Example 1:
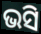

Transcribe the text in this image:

ଭସି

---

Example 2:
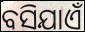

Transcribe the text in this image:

ବସିଯାଏଁ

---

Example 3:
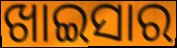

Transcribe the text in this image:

ଖାଇସାର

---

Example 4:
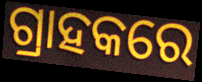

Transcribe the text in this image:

ଗ୍ରାହକରେ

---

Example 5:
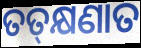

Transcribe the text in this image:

ତତ୍‍କ୍ଷଣାତ